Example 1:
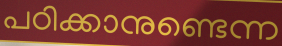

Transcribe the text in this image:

പഠിക്കാനുണ്ടെന്ന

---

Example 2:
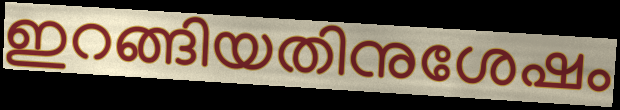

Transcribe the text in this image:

ഇറങ്ങിയതിനുശേഷം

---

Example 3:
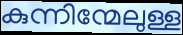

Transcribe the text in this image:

കുന്നിന്മേലുള്ള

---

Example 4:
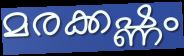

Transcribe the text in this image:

മരക്കഷ്ണം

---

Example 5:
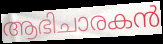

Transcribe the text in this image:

ആഭിചാരകൻ